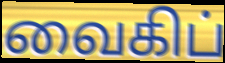
வைகிப்